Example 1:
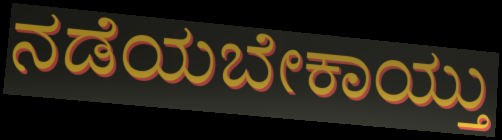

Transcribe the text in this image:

ನಡೆಯಬೇಕಾಯ್ತು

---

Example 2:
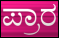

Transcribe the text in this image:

ಪ್ರಾರ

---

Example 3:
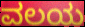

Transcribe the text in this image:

ವಲಯ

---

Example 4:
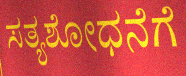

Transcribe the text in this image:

ಸತ್ಯಶೋಧನೆಗೆ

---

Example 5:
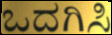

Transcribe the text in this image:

ಒದಗಿಸಿ